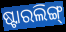
ଷ୍ଟାରଲିଙ୍ଗ୍